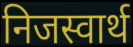
निजस्वार्थ